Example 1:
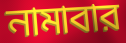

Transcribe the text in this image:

নামাবার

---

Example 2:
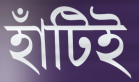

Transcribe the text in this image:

হাঁটিই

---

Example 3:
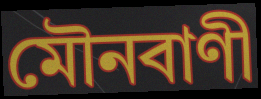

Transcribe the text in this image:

মৌনবাণী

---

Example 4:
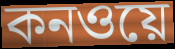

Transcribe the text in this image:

কনওয়ে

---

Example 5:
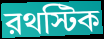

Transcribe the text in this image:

রথস্টিক